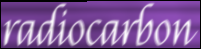
radiocarbon